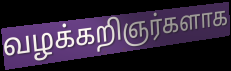
வழக்கறிஞர்களாக